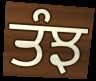
ਤੰਝ